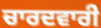
ਚਾਰਦਵਾਰੀ